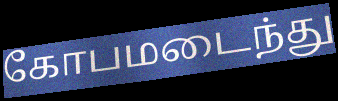
கோபமடைந்து